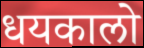
धयकालो